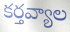
కర్తవ్యాల